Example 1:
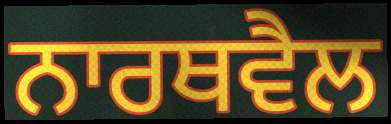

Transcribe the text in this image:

ਨਾਰਥਵੈਲ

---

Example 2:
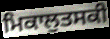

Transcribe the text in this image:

ਮਿਕਾਲੁਤਸਕੀ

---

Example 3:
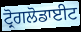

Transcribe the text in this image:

ਟ੍ਰੋਗਲੋਡਾਈਟ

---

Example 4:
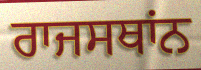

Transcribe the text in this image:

ਰਾਜਸਥਾਂਨ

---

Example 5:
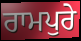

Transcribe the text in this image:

ਰਾਮਪੁਰੇ